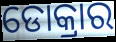
ଡୋକ୍ରାର